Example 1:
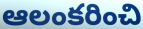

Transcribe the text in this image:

ఆలంకరించి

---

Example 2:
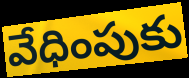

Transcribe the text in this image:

వేధింపుకు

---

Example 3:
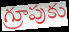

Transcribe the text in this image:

గ్రూపుకు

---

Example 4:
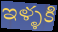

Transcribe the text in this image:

ఇళ్ళకి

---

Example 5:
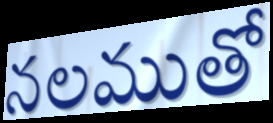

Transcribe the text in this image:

నలముతో